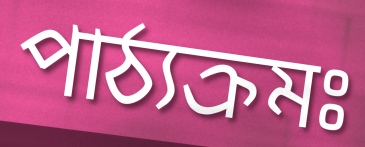
পাঠ্যক্ৰমঃ